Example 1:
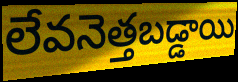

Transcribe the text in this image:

లేవనెత్తబడ్డాయి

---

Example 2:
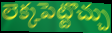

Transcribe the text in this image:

లెక్కపెట్టొచ్చు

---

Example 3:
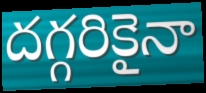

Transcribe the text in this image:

దగ్గరికైనా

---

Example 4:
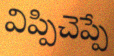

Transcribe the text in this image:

విప్పిచెప్పే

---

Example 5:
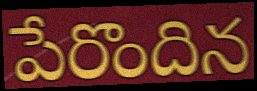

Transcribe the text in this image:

పేరొందిన